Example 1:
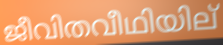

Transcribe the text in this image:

ജീവിതവീഥിയില്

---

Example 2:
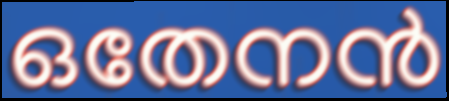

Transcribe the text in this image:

ഒതേനൻ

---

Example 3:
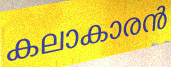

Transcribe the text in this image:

കലാകാരൻ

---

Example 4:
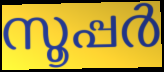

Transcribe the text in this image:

സൂപ്പർ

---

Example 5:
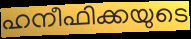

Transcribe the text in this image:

ഹനീഫിക്കയുടെ